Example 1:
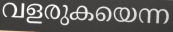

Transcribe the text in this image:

വളരുകയെന്ന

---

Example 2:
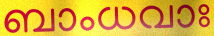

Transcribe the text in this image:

ബാംധവാഃ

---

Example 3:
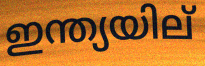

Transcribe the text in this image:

ഇന്ത്യയില്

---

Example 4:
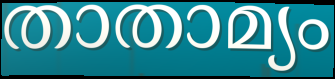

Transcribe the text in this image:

താതാമ്യം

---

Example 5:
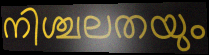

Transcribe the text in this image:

നിശ്ചലതയും